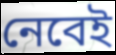
নেবেই